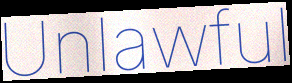
Unlawful